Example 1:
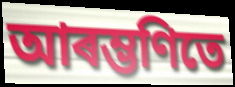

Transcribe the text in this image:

আৰম্ভণিতে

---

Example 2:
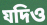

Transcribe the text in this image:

যদিও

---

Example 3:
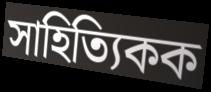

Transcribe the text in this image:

সাহিত্যিকক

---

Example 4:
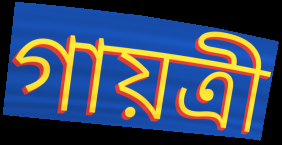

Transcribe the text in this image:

গায়ত্ৰী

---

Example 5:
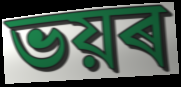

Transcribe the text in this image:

ভয়ৰ